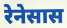
रेनेसास